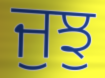
ਜੁਝੁ